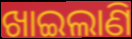
ଖାଇଲାଣି